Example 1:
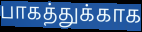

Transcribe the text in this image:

பாகத்துக்காக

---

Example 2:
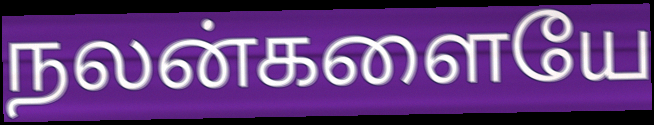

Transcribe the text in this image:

நலன்களையே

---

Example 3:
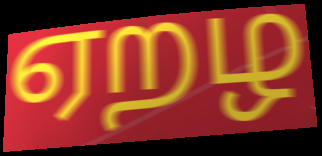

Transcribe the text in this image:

ஏறழ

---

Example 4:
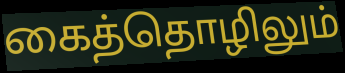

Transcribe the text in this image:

கைத்தொழிலும்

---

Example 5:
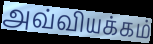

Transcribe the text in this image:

அவ்வியக்கம்